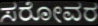
ಸರೋವರ